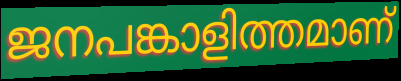
ജനപങ്കാളിത്തമാണ്